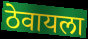
ठेवायला